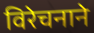
विरेचनाने